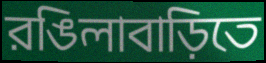
রঙিলাবাড়িতে